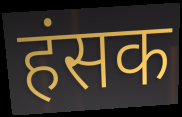
हंसक